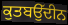
ਕੁਤਬਉੱਦੀਨ